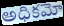
అధికమో